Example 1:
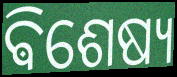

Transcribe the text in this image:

ଵିଶେଷ୍ୟ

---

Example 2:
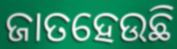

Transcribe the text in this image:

ଜାତହେଉଛି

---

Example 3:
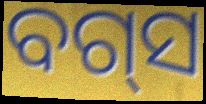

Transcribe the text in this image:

ବଗ୍‌ସ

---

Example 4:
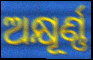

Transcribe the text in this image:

ଅକ୍ଷୂର୍ଣ୍ଣ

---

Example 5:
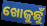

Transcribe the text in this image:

ଖୋଜୁଛୁଁ